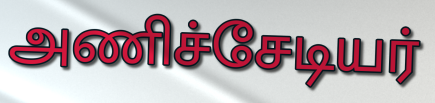
அணிச்சேடியர்